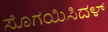
ಸೊಗಯಿಸಿದಳ್